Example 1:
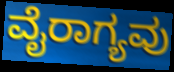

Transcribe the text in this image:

ವೈರಾಗ್ಯವು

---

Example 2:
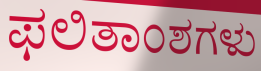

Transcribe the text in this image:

ಫಲಿತಾಂಶಗಳು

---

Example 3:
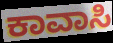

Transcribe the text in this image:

ಕಾವಾಸಿ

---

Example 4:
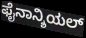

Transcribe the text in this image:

ಫೈನಾನ್ಶಿಯಲ್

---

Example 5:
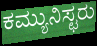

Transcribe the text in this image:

ಕಮ್ಯುನಿಸ್ಟರು